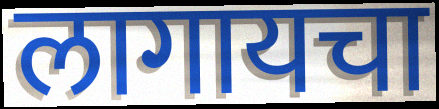
लागायचा